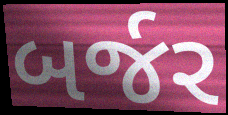
બર્જર